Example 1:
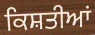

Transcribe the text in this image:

ਕਿਸ਼ਤੀਆਂ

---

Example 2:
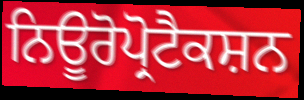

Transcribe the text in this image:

ਨਿਊਰੋਪ੍ਰੋਟੈਕਸ਼ਨ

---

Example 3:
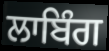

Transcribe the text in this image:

ਲਾਬਿੰਗ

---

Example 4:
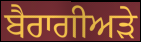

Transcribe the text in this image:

ਬੈਰਾਗੀਅੜੇ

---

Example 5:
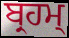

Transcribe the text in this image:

ਬ੍ਰਹਮ੍